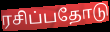
ரசிப்பதோடு